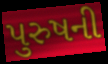
પુરુષની